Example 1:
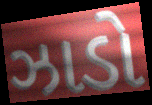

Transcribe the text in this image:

ઝાડો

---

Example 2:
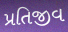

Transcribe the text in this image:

પ્રતિજીવ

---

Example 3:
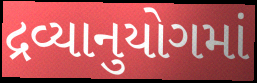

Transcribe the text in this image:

દ્રવ્યાનુયોગમાં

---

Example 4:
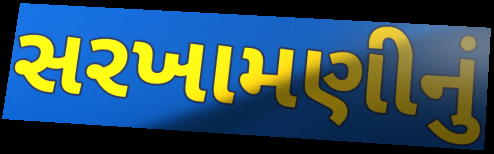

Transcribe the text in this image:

સરખામણીનું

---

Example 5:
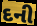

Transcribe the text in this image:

દની